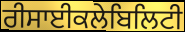
ਰੀਸਾਈਕਲੇਬਿਲਿਟੀ